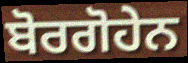
ਬੋਰਗੋਹੇਨ